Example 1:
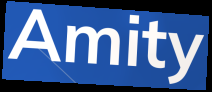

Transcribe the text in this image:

Amity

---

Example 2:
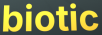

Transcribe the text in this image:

biotic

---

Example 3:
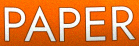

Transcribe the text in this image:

PAPER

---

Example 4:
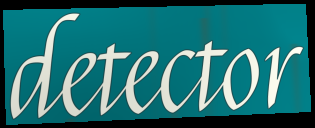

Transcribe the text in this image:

detector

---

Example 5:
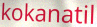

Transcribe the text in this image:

kokanatil